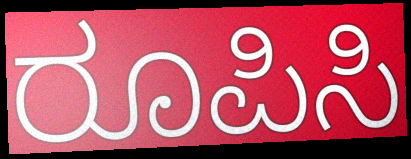
ರೂಪಿಸಿ